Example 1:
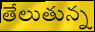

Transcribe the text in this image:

తేలుతున్న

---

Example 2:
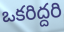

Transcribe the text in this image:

ఒకరిద్దరి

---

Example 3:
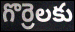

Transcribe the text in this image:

గొర్రెలకు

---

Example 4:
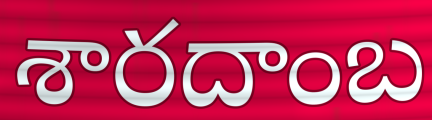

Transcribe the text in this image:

శారదాంబ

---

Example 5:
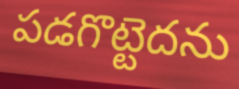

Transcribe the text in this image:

పడగొట్టెదను